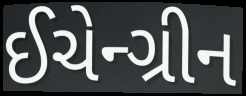
ઈચેન્ગ્રીન